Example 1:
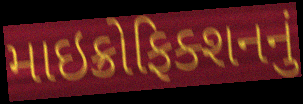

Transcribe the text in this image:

માઇક્રોફિક્શનનું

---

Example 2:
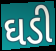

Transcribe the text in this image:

ઘડી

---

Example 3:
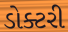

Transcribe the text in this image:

ડોક્ટરી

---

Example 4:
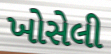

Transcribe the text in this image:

ખોસેલી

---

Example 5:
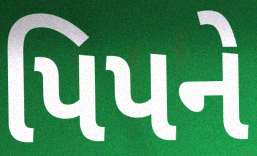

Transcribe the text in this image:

પિપને